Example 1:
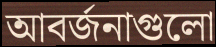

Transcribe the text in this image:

আবর্জনাগুলো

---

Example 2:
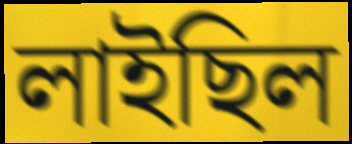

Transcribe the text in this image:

লাইছিল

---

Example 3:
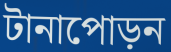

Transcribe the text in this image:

টানাপোড়ন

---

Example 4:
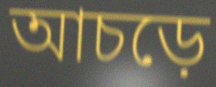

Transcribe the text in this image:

আচড়ে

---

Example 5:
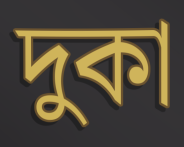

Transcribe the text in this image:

দুকা